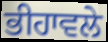
ਭੀਹਾਵਲੇ